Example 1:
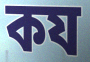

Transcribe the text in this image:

কয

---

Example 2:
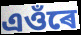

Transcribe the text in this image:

এওঁৰে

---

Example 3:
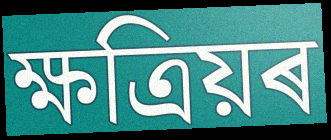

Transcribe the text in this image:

ক্ষত্ৰিয়ৰ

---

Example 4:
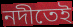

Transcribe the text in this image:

নদীতেই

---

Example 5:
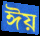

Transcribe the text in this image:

ঈয়